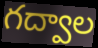
గద్వాల